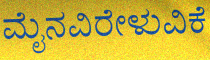
ಮೈನವಿರೇಳುವಿಕೆ